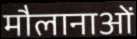
मौलानाओं